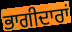
ਭਾਗੀਦਾਰਾਂ